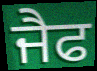
ਜੈਫ